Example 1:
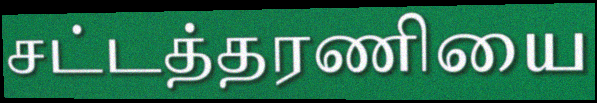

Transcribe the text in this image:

சட்டத்தரணியை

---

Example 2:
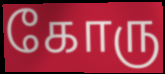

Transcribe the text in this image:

கோரு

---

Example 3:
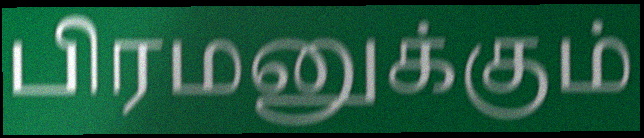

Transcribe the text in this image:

பிரமனுக்கும்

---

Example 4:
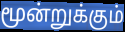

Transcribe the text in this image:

மூன்றுக்கும்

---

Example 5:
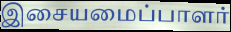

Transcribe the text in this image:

இசையமைப்பாளர்